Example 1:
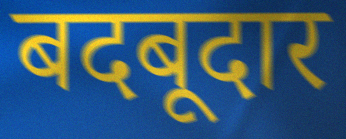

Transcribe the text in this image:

बदबूदार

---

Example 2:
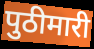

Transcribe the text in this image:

पुठीमारी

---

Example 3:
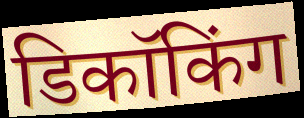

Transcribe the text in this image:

डिकॉकिंग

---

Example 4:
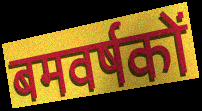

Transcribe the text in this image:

बमवर्षकों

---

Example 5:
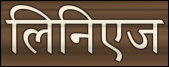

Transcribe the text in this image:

लिनिएज